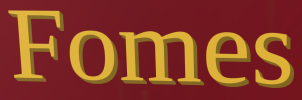
Fomes